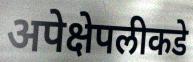
अपेक्षेपलीकडे